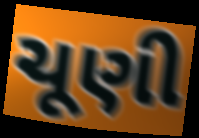
ચૂણી